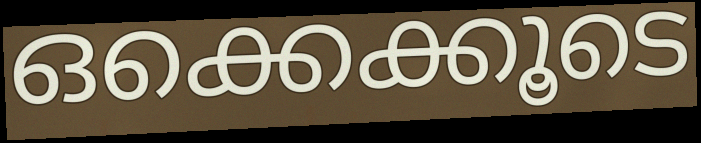
ഒക്കെക്കൂടെ